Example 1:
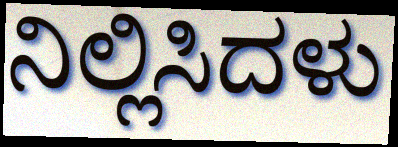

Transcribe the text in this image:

ನಿಲ್ಲಿಸಿದಳು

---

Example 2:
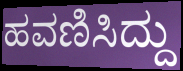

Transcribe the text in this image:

ಹವಣಿಸಿದ್ದು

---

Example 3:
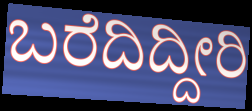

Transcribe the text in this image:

ಬರೆದಿದ್ದೀರಿ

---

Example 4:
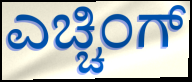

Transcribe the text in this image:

ಎಚ್ಚಿಂಗ್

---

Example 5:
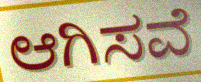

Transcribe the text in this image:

ಆಗಿಸವೆ